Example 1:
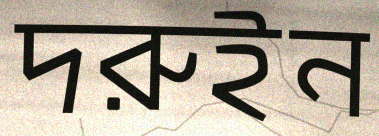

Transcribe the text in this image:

দরুইন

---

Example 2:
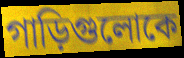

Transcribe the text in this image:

গাড়িগুলোকে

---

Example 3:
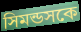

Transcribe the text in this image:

সিমন্ডসকে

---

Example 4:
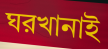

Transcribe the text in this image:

ঘরখানাই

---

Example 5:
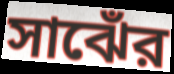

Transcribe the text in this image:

সাঝেঁর